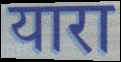
यारा